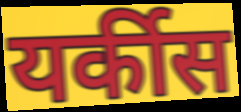
यर्कीस